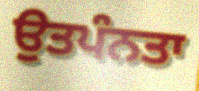
ਉਤਪੰਨਤਾ